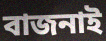
বাজনাই